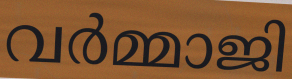
വർമ്മാജി